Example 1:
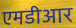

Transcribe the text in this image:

एमडीआर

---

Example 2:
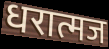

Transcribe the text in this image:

धरात्मज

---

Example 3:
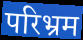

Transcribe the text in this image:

परिभ्रम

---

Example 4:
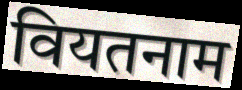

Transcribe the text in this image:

वियतनाम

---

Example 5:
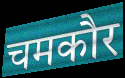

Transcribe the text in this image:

चमकौर